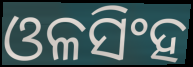
ଓଳସିଂହ